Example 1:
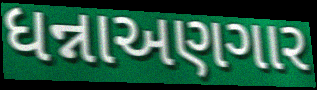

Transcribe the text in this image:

ધન્નાઅણગાર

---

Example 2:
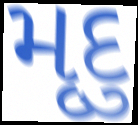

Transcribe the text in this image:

મૃદુ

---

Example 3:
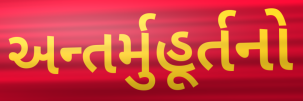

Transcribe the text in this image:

અન્તર્મુહૂર્તનો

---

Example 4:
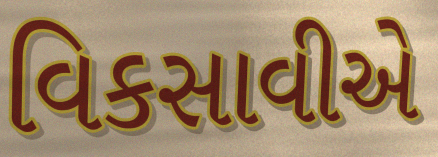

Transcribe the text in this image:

વિકસાવીએ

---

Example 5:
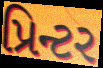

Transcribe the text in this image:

પ્રિન્ટર